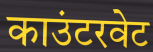
काउंटरवेट